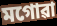
মগোৱা